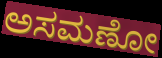
ಅಸಮಣೋ